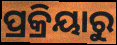
ପ୍ରକ୍ରିୟାରୁ